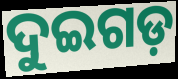
ଦୁଇଗଡ଼